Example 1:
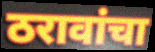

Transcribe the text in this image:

ठरावांचा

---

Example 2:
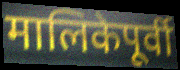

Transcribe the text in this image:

मालिकेपूर्वी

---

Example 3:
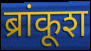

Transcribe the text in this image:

ब्रांकूश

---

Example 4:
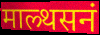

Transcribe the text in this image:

माल्थसनं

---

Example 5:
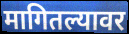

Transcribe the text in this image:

मागितल्यावर